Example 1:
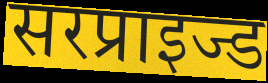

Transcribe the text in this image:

सरप्राइज्ड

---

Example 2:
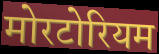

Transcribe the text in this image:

मोरटोरियम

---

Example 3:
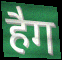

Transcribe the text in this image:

हैग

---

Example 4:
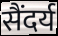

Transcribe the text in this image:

सैंदर्य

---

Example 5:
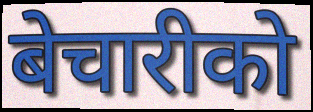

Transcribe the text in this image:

बेचारीको